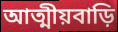
আত্মীয়বাড়ি